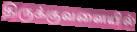
திருக்குவளையில்